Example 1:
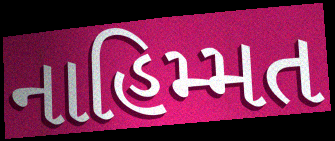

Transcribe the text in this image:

નાહિમ્મત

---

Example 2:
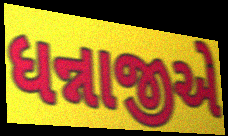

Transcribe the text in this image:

ધન્નાજીએ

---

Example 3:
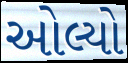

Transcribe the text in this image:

ઓલ્યો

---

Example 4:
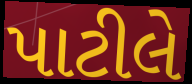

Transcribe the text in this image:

પાટીલે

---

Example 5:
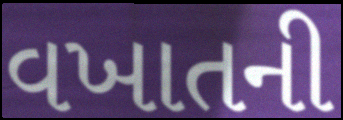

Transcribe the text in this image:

વખાતની